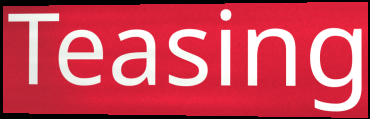
Teasing